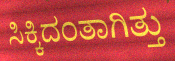
ಸಿಕ್ಕಿದಂತಾಗಿತ್ತು